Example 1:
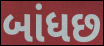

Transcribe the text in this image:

બાંધછ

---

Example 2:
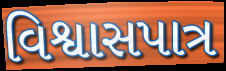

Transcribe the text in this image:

વિશ્વાસપાત્ર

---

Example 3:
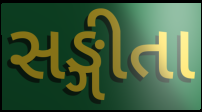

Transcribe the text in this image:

સઙ્ગીતા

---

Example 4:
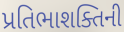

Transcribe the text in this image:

પ્રતિભાશક્તિની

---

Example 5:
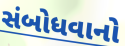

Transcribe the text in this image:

સંબોધવાનો